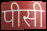
पीसी